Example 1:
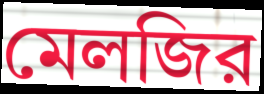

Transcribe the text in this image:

মেলজির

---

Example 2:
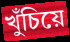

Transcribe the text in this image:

খুঁচিয়ে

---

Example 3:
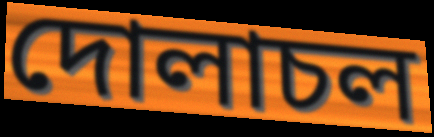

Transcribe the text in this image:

দোলাচল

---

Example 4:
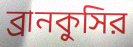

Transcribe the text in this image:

ব্রানকুসির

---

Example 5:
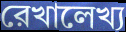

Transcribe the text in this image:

রেখালেখ্য